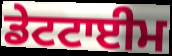
ਡੇਟਟਾਈਮ